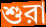
শুরা